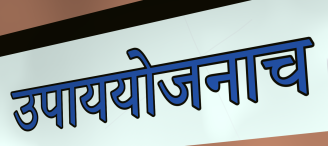
उपाययोजनाच